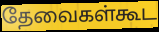
தேவைகள்கூட